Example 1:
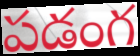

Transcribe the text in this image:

పడంగ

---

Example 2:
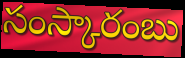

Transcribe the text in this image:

సంస్కారంబు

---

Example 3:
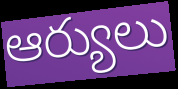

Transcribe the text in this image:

ఆర్యులు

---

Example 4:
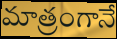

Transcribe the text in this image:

మాత్రంగానే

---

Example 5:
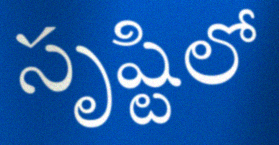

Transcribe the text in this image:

సృష్టిలో